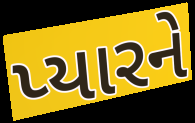
પ્યારને